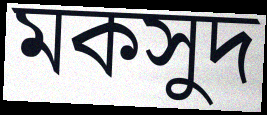
মকসুদ